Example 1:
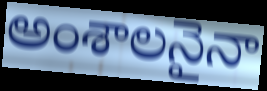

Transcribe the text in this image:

అంశాలనైనా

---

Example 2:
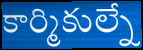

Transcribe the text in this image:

కార్మికుల్నే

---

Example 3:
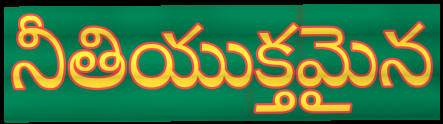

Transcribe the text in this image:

నీతియుక్తమైన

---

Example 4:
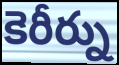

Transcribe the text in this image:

కెరీర్ను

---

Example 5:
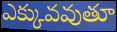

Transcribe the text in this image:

ఎక్కువవుతూ